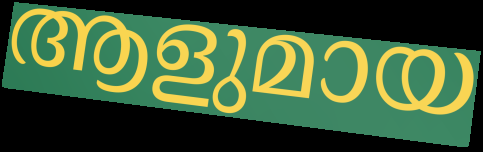
ആളുമായ